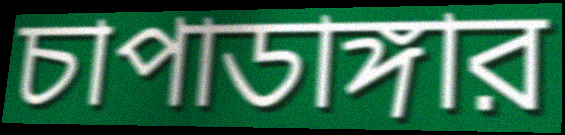
চাপাডাঙ্গার